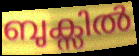
ബുക്സിൽ